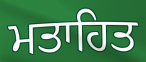
ਮਤਾਹਿਤ